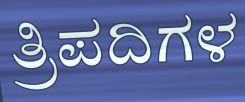
ತ್ರಿಪದಿಗಳ